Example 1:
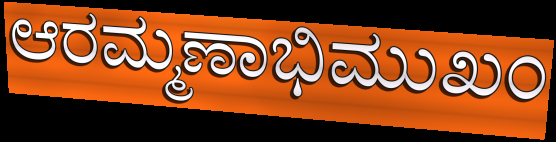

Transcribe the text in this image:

ಆರಮ್ಮಣಾಭಿಮುಖಂ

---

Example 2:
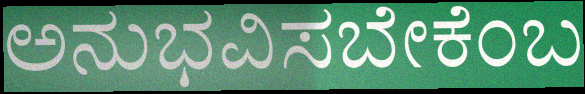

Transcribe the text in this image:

ಅನುಭವಿಸಬೇಕೆಂಬ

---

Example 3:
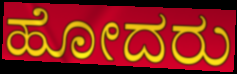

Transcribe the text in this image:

ಹೋದರು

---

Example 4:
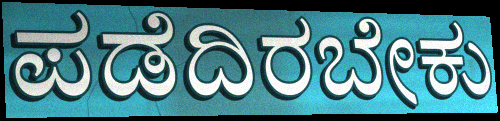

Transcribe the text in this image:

ಪಡೆದಿರಬೇಕು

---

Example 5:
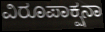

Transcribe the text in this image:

ವಿರೂಪಾಕ್ಷನಾ